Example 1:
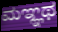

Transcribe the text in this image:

ಮಞ್ಞಥ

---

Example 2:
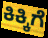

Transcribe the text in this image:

ಕಿಕ್ಕಿಗೆ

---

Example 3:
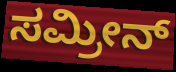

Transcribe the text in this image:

ಸಮ್ರೀನ್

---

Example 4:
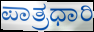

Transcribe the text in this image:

ಪಾತ್ರಧಾರಿ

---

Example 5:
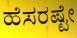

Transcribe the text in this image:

ಹೆಸರಷ್ಟೇ